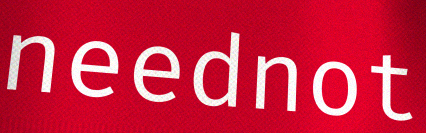
neednot